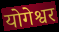
योगेश्वर